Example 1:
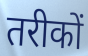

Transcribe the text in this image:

तरीकों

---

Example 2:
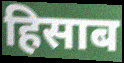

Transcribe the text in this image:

हिसाब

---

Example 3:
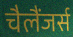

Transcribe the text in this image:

चैलैंजर्स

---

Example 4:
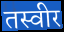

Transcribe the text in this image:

तस्वीर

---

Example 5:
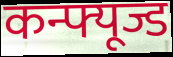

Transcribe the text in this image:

कन्फ्यूज्ड